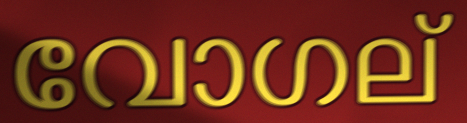
വോഗല്